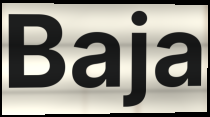
Baja